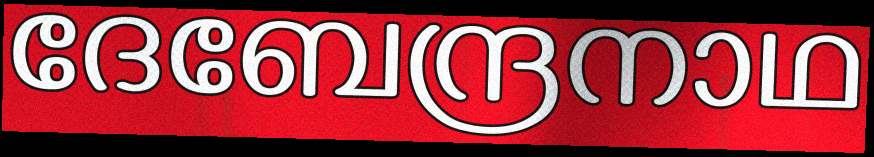
ദേബേന്ദ്രനാഥ